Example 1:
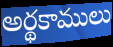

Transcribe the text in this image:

అర్థకాములు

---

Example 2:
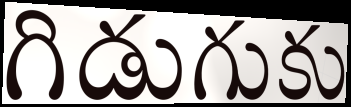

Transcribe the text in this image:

గిడుగుకు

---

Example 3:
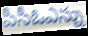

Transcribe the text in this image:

పీసీఓఎస్ను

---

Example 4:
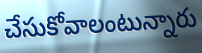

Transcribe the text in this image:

చేసుకోవాలంటున్నారు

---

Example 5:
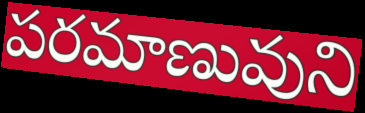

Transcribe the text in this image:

పరమాణువుని